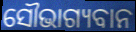
ସୌଭାଗ୍ୟବାନ